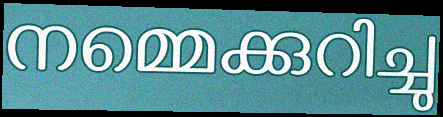
നമ്മെക്കുറിച്ചു